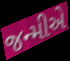
જન્મીએ